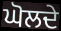
ਘੋਲਦੇ